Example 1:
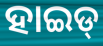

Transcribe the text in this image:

ହାଇଡ୍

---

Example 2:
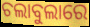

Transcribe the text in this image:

ଚଲାବୁଲାରେ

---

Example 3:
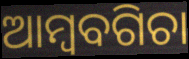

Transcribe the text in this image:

ଆମ୍ବବଗିଚା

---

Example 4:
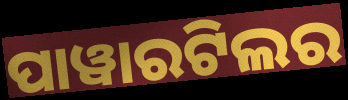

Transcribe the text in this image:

ପାୱାରଟିଲର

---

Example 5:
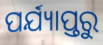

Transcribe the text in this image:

ପର୍ଯ୍ୟାପ୍ତରୁ